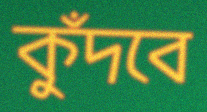
কুঁদবে